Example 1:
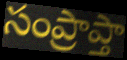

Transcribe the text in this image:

సంప్రాప్తా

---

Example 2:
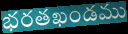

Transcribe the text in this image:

భరతఖండము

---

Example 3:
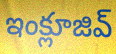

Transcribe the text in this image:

ఇంక్లూజివ్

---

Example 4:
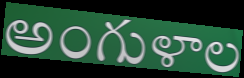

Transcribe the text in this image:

అంగుళాల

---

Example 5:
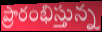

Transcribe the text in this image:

ప్రారంభిస్తున్న